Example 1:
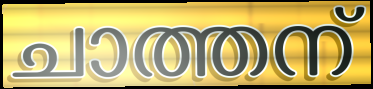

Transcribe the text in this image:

ചാത്തന്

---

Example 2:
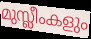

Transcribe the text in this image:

മുസ്ലീംകളും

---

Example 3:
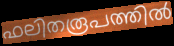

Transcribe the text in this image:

ഫലിതരൂപത്തിൽ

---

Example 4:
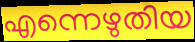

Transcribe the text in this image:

എന്നെഴുതിയ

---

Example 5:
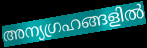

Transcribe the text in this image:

അന്യഗ്രഹങ്ങളിൽ